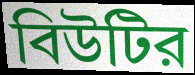
বিউটির